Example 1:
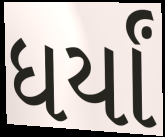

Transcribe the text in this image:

ધર્યાં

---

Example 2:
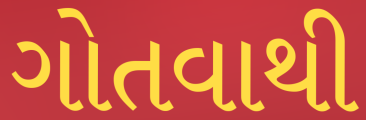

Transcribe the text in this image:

ગોતવાથી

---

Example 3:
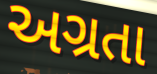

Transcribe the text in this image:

અગ્રતા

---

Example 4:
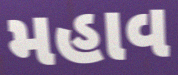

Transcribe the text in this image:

મહાવ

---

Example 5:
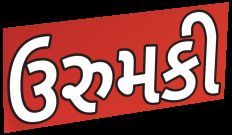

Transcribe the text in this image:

ઉરુમકી